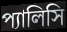
প্যালিসি